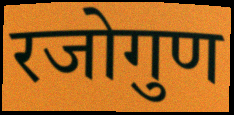
रजोगुण